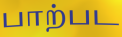
பாற்பட